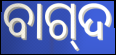
ବାଗ୍‌ଦ